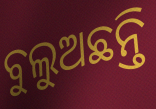
ବୁଲୁଅଛନ୍ତି